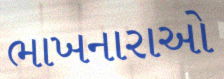
ભાખનારાઓ